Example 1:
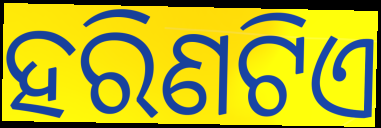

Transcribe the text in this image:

ହରିଣଟିଏ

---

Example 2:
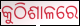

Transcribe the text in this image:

କୁଠିଶାଳରେ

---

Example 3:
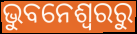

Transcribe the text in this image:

ଭୁବନେଶ୍ୱରରୁ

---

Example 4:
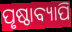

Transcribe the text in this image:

ପୃଷ୍ଠାବ୍ୟାପି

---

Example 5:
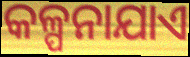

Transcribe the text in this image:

କଳ୍ପନାଯାଏ